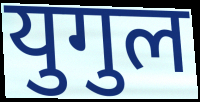
युगुल